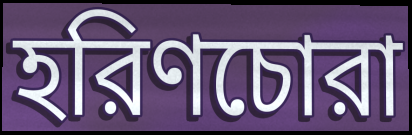
হরিণচোরা